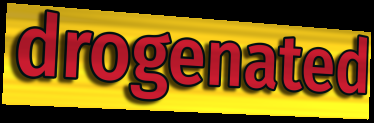
drogenated